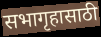
सभागृहासाठी